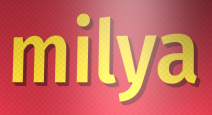
milya